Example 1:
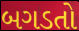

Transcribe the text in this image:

બગડતો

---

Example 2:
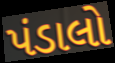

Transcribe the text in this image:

પંડાલો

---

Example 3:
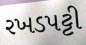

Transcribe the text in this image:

રખડપટ્ટી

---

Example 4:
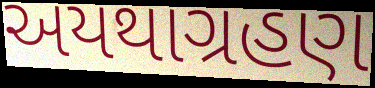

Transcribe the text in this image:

અયથાગ્રહણ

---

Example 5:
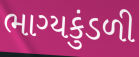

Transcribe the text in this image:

ભાગ્યકુંડળી